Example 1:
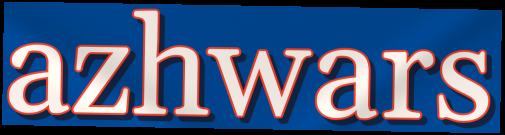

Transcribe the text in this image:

azhwars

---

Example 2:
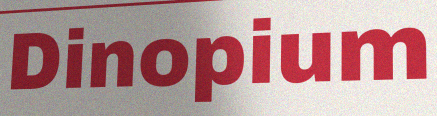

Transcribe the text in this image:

Dinopium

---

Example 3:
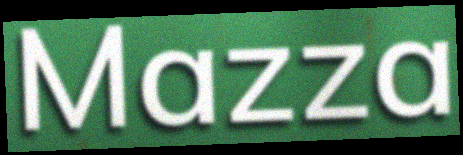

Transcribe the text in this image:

Mazza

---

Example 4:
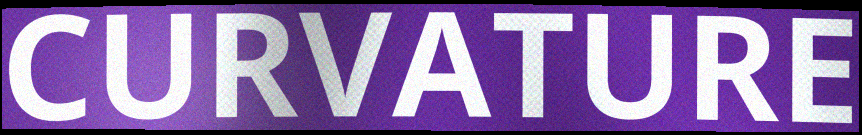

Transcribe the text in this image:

CURVATURE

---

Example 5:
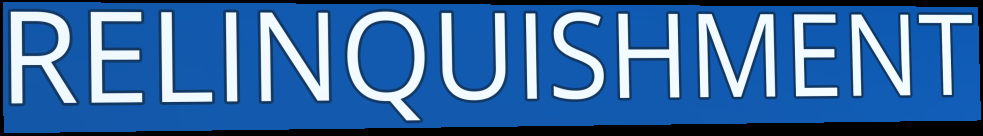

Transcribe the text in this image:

RELINQUISHMENT